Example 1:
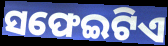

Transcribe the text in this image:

ସଫେଇଟିଏ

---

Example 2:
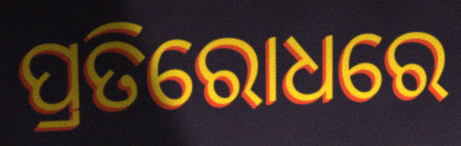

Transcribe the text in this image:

ପ୍ରତିରୋଧରେ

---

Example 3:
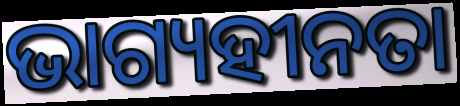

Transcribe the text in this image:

ଭାଗ୍ୟହୀନତା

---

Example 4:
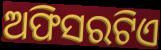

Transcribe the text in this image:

ଅଫିସରଟିଏ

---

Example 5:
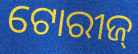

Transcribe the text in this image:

ଟୋରୀଜ୍